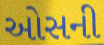
ઓસની